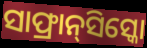
ସାଫ୍ରାନ୍‌ସିସ୍କୋ